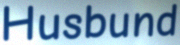
Husbund